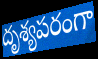
దృశ్యపరంగా